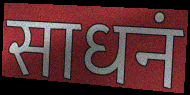
साधनं